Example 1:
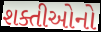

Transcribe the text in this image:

શક્તીઓનો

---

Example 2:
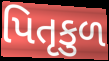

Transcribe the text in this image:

પિતૃકુળ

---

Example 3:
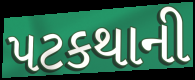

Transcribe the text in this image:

પટકથાની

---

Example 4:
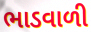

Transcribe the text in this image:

ભાડવાળી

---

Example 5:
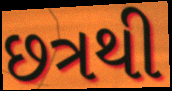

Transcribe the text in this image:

છત્રથી